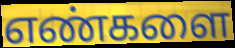
எண்களை